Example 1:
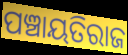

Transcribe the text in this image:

ପଞ୍ଚାୟତିରାଜ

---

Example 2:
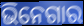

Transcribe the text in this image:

ଭିନେଗାର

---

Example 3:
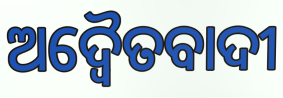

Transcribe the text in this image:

ଅଦ୍ୱୈତବାଦୀ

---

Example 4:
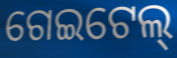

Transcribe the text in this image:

ଗେଇଟେଲ୍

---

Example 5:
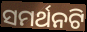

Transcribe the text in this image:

ସମର୍ଥନଟି